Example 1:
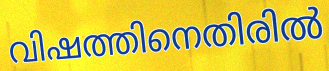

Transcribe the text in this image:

വിഷത്തിനെതിരിൽ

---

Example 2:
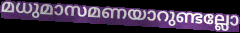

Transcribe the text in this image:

മധുമാസമണയാറുണ്ടല്ലോ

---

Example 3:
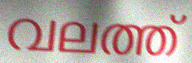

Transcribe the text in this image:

വലത്ത്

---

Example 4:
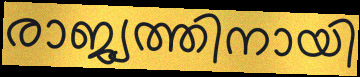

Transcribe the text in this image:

രാജ്യത്തിനായി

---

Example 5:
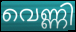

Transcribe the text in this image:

വെണ്ണി